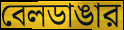
বেলডাঙার